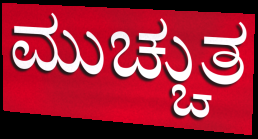
ಮುಚ್ಚುತ